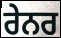
ਰੇਨਰ